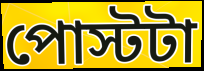
পোস্টটা